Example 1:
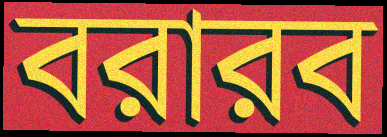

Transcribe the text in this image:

বরারব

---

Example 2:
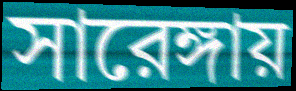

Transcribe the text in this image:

সারেঙ্গায়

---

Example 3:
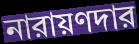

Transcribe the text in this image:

নারায়ণদার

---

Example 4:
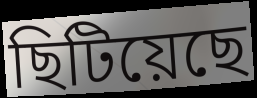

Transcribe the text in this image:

ছিটিয়েছে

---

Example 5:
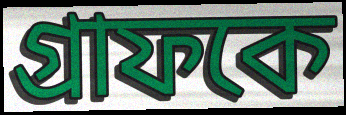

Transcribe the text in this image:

গ্রাফকে